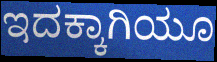
ಇದಕ್ಕಾಗಿಯೂ